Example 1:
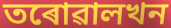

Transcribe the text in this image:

তৰোৱালখন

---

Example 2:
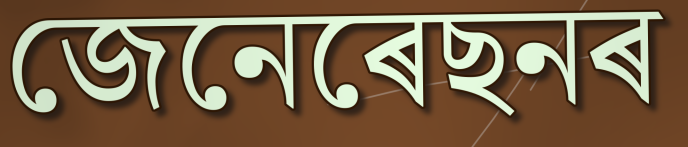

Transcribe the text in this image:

জেনেৰেছনৰ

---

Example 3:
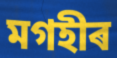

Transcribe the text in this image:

মগহীৰ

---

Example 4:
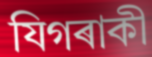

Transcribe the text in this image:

যিগৰাকী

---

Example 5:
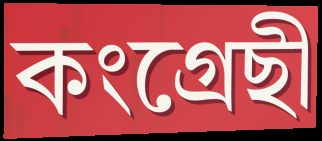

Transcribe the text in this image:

কংগ্ৰেছী